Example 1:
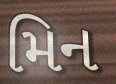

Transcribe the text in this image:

મિન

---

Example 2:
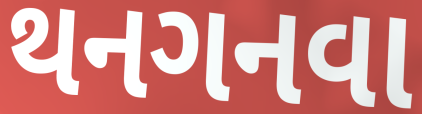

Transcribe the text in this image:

થનગનવા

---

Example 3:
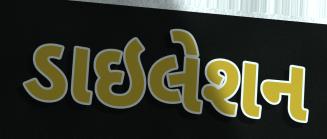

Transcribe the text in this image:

ડાઇલેશન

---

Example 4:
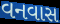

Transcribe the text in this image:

વનવાસ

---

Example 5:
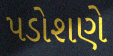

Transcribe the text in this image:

પડોશણે